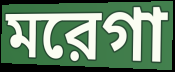
মরেগা